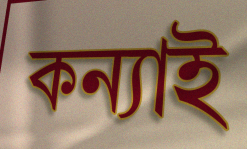
কন্যাই